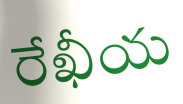
రేఖీయ